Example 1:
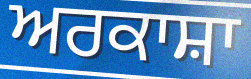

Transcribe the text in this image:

ਅਰਕਾਸ਼ਾ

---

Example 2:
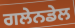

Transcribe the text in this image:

ਗਲੇਨਡੇਲ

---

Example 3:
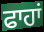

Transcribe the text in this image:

ਫਾਹਾਂ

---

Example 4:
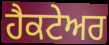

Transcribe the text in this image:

ਹੈਕਟੇਅਰ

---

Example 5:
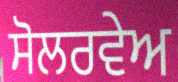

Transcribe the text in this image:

ਸੋਲਰਵੇਅ